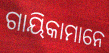
ଗାୟିକାମାନେ